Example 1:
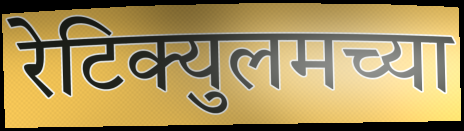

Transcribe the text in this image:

रेटिक्युलमच्या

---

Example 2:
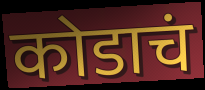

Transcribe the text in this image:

कोडाचं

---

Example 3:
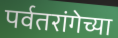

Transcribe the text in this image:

पर्वतरांगेच्या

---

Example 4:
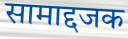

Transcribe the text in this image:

सामाद्दजक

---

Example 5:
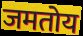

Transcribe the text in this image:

जमतोय